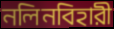
নলিনবিহারী